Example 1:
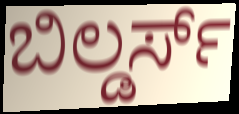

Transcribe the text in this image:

ಬಿಲ್ಡರ್ಸ್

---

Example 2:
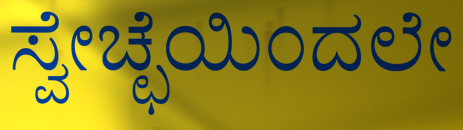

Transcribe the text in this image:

ಸ್ವೇಚ್ಛೆಯಿಂದಲೇ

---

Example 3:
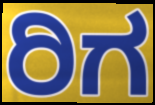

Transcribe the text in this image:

ರಿಗ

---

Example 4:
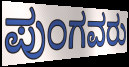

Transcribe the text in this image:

ಪುಂಗವರು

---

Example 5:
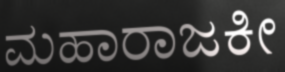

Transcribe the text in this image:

ಮಹಾರಾಜಕೀ